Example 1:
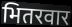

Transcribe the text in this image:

भितरवार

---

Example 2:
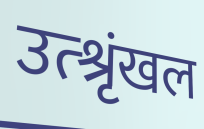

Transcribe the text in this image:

उत्श्रृंखल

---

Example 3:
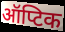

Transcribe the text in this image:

ऑप्टिक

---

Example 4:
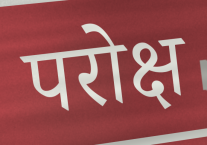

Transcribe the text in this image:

परोक्ष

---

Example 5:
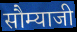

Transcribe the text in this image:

सौम्याजी